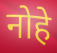
नोहे